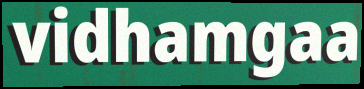
vidhamgaa